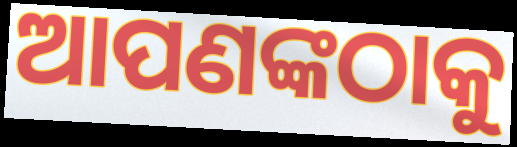
ଆପଣଙ୍କଠାକୁ